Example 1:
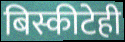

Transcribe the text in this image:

बिस्कीटेही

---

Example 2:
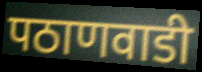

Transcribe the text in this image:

पठाणवाडी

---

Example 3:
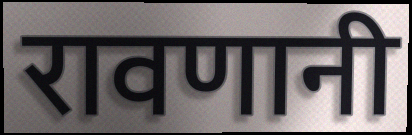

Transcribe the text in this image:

रावणानी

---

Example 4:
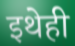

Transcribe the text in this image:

इथेही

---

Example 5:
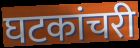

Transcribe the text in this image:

घटकांचरी